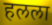
हलला